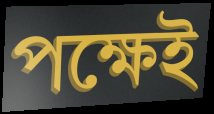
পক্ষেই